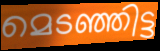
മെടഞ്ഞിട്ട